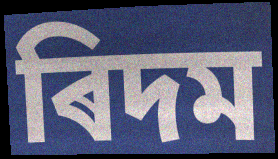
ৰিদম